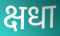
क्षधा